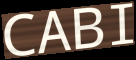
CABI